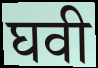
घवी